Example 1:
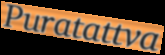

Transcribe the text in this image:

Puratattva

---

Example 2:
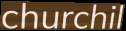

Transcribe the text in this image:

churchil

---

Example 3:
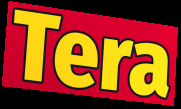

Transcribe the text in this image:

Tera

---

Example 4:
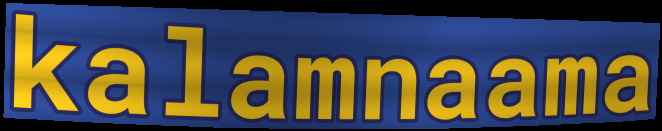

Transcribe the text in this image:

kalamnaama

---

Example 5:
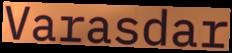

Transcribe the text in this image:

Varasdar